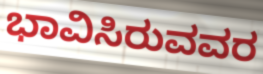
ಭಾವಿಸಿರುವವರ